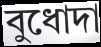
বুধোদা